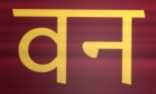
वन